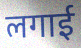
लगाई